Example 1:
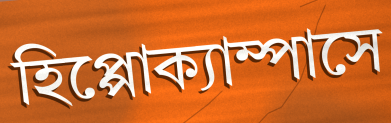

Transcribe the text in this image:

হিপ্পোক্যাম্পাসে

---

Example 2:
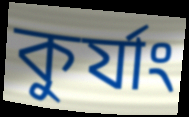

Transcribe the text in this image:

কুর্যাং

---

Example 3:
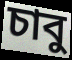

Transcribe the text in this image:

চাবু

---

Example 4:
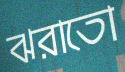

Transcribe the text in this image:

ঝরাতো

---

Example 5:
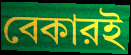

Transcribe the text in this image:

বেকারই